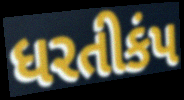
ધરતીકંપ